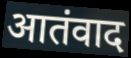
आतंवाद